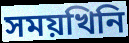
সময়খিনি